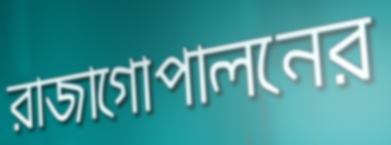
রাজাগোপালনের